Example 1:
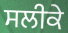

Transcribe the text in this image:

ਸਲੀਕੇ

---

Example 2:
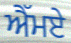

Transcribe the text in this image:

ਐੱਮਏ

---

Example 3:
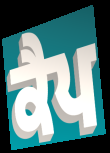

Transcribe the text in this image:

ਕੈਪ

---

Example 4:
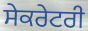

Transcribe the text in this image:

ਸੇਕਰੇਟਰੀ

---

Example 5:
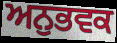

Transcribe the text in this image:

ਅਨੁਭਵਕ